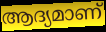
ആദ്യമാണ്